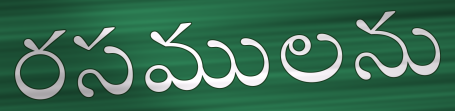
రసములను